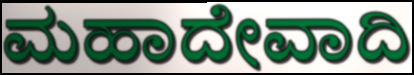
ಮಹಾದೇವಾದಿ